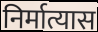
निर्मात्यास